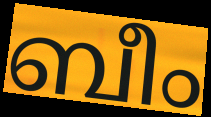
ബീം